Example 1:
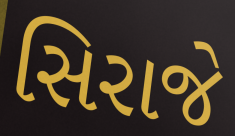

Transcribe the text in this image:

સિરાજે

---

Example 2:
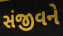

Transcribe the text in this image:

સંજીવને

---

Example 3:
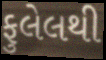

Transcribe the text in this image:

ફુલેલથી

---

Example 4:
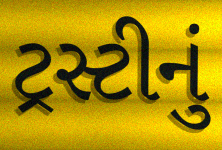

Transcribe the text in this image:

ટ્રસ્ટીનું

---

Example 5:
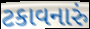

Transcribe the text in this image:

ટકાવનારું